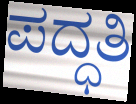
ಪದ್ಧತಿ